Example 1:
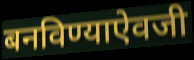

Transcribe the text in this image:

बनविण्याऐवजी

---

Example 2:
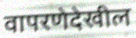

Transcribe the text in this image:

वापरणेदेखील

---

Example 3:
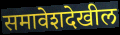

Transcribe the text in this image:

समावेशदेखील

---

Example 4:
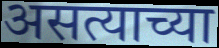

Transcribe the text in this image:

असत्याच्या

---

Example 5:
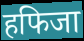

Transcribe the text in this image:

हफिजा